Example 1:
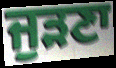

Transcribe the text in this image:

ਜੁੜਣਾ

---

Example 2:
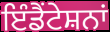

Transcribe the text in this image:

ਇੰਡੈਂਟੇਸ਼ਨਾਂ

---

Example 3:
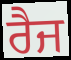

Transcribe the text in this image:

ਰੈਜ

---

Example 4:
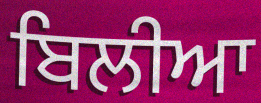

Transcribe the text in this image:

ਬਿਲੀਆ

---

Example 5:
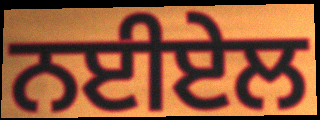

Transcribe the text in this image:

ਨਈਏਲ